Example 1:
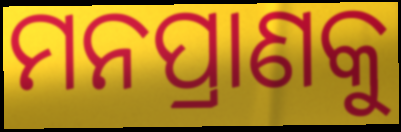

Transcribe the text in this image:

ମନପ୍ରାଣକୁ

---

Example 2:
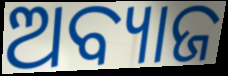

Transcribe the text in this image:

ଅବ୍ଯାଜ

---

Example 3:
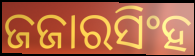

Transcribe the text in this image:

ଜଜାରସିଂହ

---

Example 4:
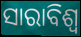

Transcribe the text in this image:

ସାରାବିଶ୍ବ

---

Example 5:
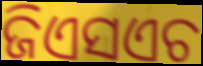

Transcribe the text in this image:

ଜିଏସଏଚ